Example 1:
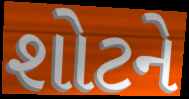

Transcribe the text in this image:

શોટને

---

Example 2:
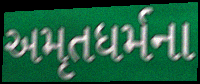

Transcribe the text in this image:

અમૃતધર્મના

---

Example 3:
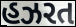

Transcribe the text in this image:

હઝરત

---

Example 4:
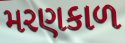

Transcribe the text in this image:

મરણકાળ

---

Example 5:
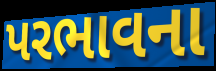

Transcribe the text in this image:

પરભાવના